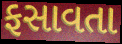
ફસાવતા